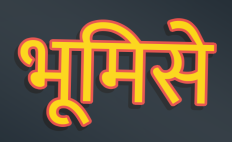
भूमिसे